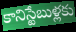
కానిస్టేబుళ్లకు